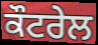
ਕੌਟਰੇਲ